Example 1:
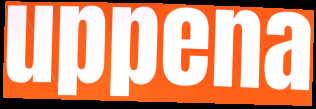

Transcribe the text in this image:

uppena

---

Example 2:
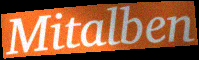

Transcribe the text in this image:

Mitalben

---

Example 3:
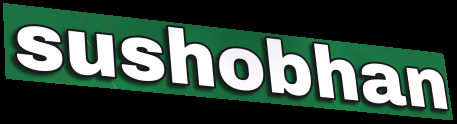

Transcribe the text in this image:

sushobhan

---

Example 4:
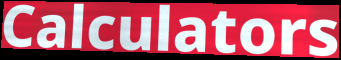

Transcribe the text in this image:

Calculators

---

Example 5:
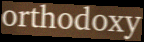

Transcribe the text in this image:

orthodoxy